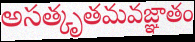
అసత్కృతమవజ్ఞాతం